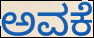
ಅವಕೆ